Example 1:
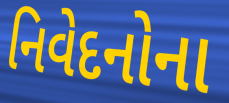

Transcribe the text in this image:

નિવેદનોના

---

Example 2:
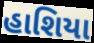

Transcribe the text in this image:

હાશિયા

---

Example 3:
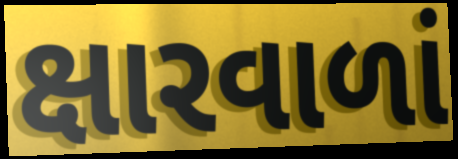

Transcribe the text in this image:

ક્ષારવાળાં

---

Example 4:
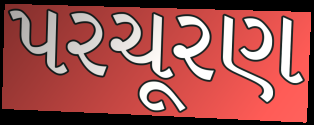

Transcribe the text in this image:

પરચૂરણ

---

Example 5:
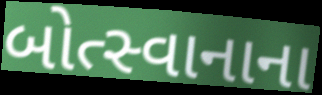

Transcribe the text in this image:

બોત્સ્વાનાના